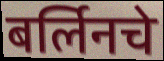
बर्लिनचे